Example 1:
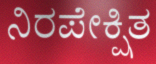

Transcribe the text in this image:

ನಿರಪೇಕ್ಷಿತ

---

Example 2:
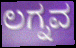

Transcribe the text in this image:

ಲಗ್ನವ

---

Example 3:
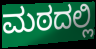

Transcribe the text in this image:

ಮಠದಲ್ಲಿ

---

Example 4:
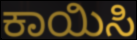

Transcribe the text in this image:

ಕಾಯಿಸಿ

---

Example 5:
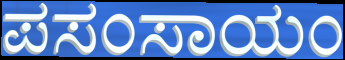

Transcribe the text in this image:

ಪಸಂಸಾಯಂ